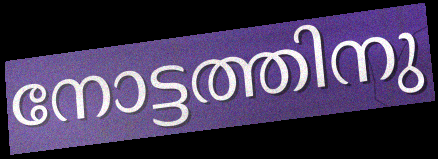
നോട്ടത്തിനു